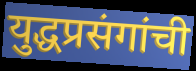
युद्धप्रसंगांची